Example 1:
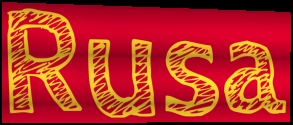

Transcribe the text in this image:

Rusa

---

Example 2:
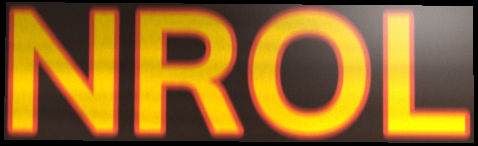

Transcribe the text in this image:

NROL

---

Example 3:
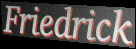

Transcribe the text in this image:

Friedrick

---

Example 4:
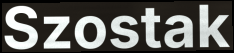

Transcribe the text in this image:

Szostak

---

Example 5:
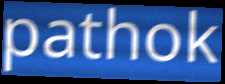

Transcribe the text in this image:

pathok